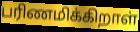
பரிணமிக்கிறாள்